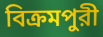
বিক্রমপুরী